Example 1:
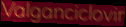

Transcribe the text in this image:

Valganciclovir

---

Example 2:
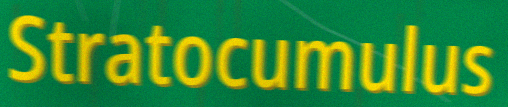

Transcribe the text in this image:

Stratocumulus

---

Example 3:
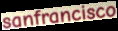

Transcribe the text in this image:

sanfrancisco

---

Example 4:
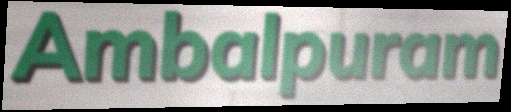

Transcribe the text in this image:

Ambalpuram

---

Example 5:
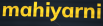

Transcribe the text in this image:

mahiyarni